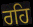
ਰਹਿ